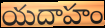
యదాహం